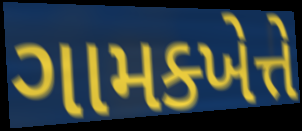
ગામક્ખેત્તે